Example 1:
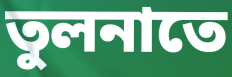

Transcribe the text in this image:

তুলনাতে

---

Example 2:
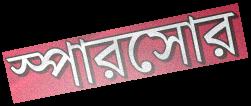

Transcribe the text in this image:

স্পারসোর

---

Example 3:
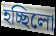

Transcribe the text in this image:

হচ্ছিলো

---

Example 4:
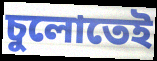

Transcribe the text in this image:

চুলোতেই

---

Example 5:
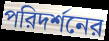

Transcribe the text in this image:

পরিদর্শনের